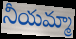
నీయమ్మా